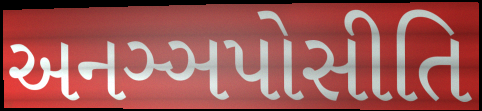
અનઞ્ઞપોસીતિ